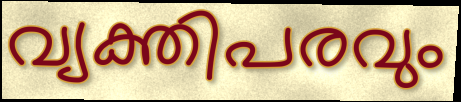
വ്യക്തിപരവും